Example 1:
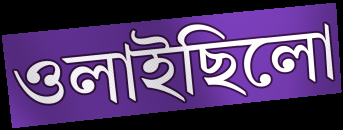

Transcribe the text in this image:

ওলাইছিলো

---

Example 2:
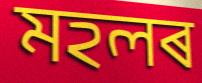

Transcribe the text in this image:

মহলৰ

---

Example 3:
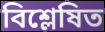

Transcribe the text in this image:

বিশ্লেষিত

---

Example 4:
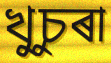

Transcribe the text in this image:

খুচুৰা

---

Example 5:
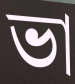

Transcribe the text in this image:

ভা